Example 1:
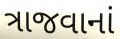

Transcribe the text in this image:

ત્રાજવાનાં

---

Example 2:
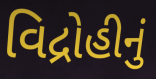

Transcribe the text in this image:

વિદ્રોહીનું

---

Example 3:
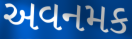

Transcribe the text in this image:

અવનમક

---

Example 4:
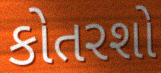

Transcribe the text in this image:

કોતરશો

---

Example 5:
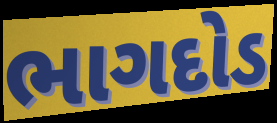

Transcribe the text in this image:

ભાગદોડ